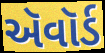
ઍવૉર્ડ